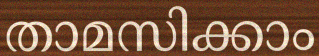
താമസിക്കാം